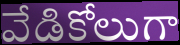
వేడికోలుగా